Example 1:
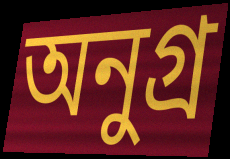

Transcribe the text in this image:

অনুগ্র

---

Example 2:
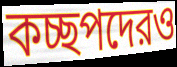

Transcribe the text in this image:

কচ্ছপদেরও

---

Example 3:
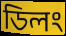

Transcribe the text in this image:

ডিলং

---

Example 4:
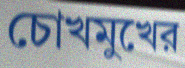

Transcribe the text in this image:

চোখমুখের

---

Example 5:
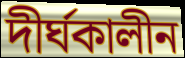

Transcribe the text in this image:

দীর্ঘকালীন